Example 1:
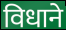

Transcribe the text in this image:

विधाने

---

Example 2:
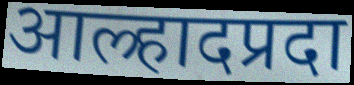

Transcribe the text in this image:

आल्हादप्रदा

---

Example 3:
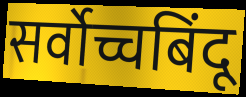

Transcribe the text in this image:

सर्वोच्चबिंदू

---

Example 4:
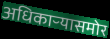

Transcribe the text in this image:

अधिकाऱ्यासमोर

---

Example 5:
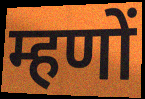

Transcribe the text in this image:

म्हणों